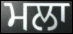
ਮਲਾ